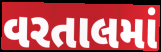
વરતાલમાં